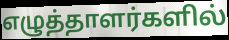
எழுத்தாளர்களில்